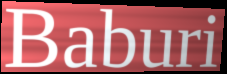
Baburi